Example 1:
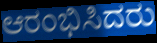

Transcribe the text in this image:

ಆರಂಭಿಸಿದರು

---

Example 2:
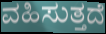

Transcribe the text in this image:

ವಹಿಸುತ್ತದೆ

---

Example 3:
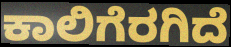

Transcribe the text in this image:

ಕಾಲಿಗೆರಗಿದೆ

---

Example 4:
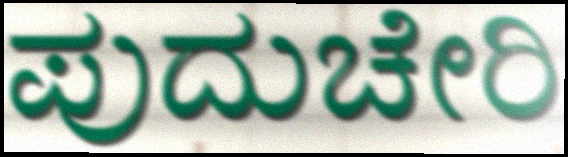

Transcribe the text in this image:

ಪುದುಚೇರಿ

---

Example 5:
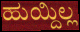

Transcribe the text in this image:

ಹುಯ್ದಿಲ್ಲ